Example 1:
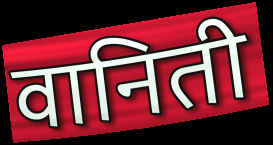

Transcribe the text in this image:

वानिती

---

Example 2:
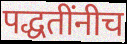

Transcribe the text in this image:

पद्धतींनीच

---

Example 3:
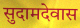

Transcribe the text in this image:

सुदामदेवास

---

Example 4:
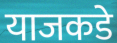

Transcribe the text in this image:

याजकडे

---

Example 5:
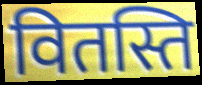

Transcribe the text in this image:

वितस्ति